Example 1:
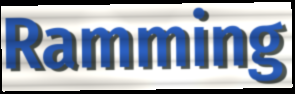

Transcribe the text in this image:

Ramming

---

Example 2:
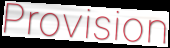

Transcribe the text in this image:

Provision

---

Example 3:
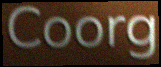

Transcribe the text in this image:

Coorg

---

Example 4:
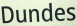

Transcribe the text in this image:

Dundes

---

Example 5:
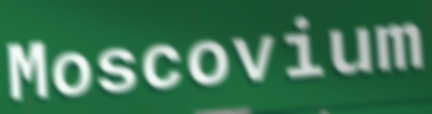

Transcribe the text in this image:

Moscovium